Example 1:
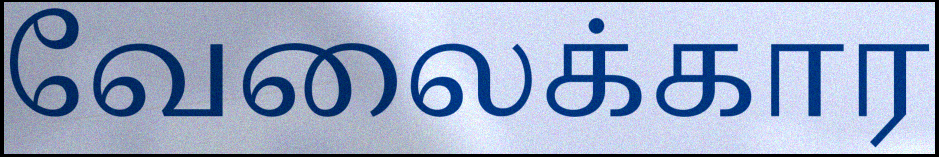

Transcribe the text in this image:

வேலைக்கார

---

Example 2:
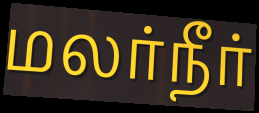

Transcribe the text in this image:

மலர்நீர்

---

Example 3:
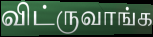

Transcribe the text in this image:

விட்ருவாங்க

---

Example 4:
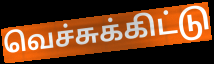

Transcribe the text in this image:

வெச்சுக்கிட்டு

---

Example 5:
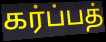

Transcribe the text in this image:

கர்ப்பத்